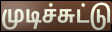
முடிச்சுட்டு